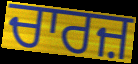
ਚਾਰਜ਼